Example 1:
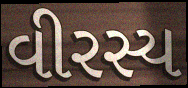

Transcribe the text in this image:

વીરસ્ય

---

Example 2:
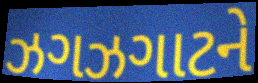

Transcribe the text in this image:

ઝગઝગાટને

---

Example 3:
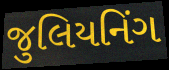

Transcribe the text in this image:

જુલિયનિંગ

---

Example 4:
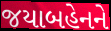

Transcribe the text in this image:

જયાબહેનને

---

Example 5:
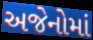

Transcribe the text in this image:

અજેનોમાં